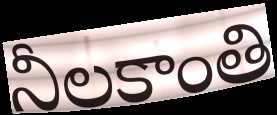
నీలకాంతి